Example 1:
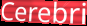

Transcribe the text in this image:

Cerebri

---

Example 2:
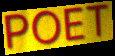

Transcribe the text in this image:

POET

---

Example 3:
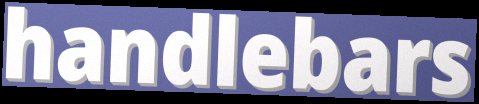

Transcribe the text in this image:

handlebars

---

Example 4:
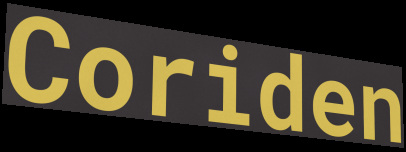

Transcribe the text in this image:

Coriden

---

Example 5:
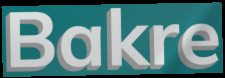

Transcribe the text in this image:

Bakre